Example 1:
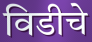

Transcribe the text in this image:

विडीचे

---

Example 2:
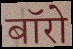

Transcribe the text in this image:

बॉरो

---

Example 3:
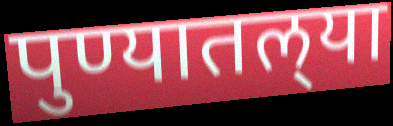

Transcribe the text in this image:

पुण्यातल्या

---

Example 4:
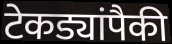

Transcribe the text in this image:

टेकड्यांपैकी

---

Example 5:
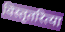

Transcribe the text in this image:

विस्तृतरित्या